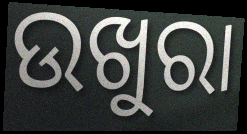
ଉଖୁରା